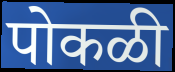
पोकळी